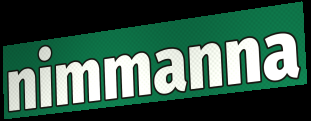
nimmanna